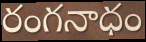
రంగనాధం